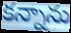
కన్నాను